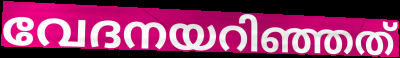
വേദനയറിഞ്ഞത്